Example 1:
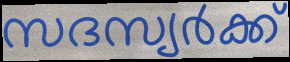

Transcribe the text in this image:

സദസ്യർക്ക്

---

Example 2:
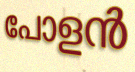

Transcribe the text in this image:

പോളൻ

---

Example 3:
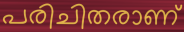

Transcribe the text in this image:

പരിചിതരാണ്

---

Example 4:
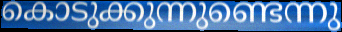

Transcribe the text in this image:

കൊടുക്കുന്നുണ്ടെന്നു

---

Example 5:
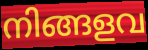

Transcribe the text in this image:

നിങ്ങളവ